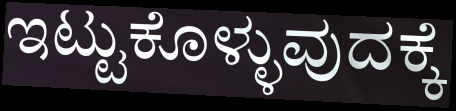
ಇಟ್ಟುಕೊಳ್ಳುವುದಕ್ಕೆ